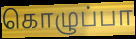
கொழுப்பா